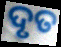
ଦୃତ